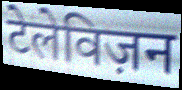
टेलेविज़न